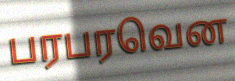
பரபரவென